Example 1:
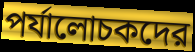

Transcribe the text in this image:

পর্যালোচকদের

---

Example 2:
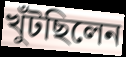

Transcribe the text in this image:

খুঁটছিলেন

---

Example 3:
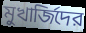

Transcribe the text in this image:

মুখার্জিদের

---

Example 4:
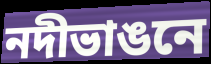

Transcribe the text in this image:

নদীভাঙনে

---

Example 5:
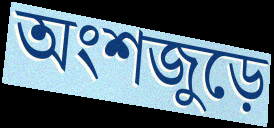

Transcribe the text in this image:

অংশজুড়ে